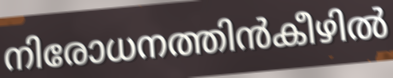
നിരോധനത്തിൻകീഴിൽ